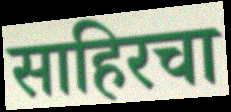
साहिरचा